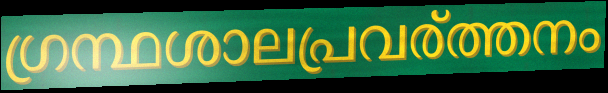
ഗ്രന്ഥശാലപ്രവര്ത്തനം